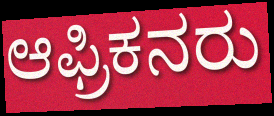
ಆಫ್ರಿಕನರು